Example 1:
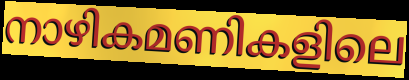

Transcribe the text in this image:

നാഴികമണികളിലെ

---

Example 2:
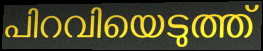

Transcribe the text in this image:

പിറവിയെടുത്ത്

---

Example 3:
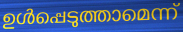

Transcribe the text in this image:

ഉൾപ്പെടുത്താമെന്ന്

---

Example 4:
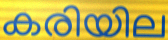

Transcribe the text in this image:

കരിയില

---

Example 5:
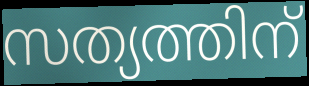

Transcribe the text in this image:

സത്യത്തിന്